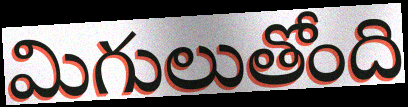
మిగులుతోంది